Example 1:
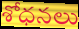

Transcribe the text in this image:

శోధనలు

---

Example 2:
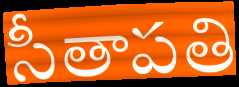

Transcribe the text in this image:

సీతాపతి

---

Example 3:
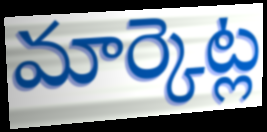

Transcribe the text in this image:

మార్కెట్ల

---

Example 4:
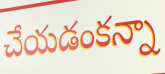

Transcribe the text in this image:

చేయడంకన్నా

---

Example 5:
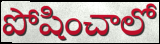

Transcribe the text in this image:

పోషించాలో